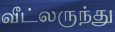
வீட்லருந்து